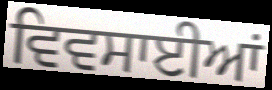
ਵਿਵਸਾਈਆਂ